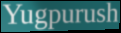
Yugpurush